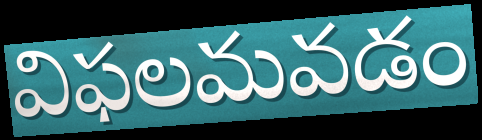
విఫలమవడం